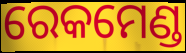
ରେକମେଣ୍ଡ